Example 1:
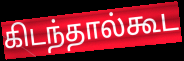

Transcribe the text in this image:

கிடந்தால்கூட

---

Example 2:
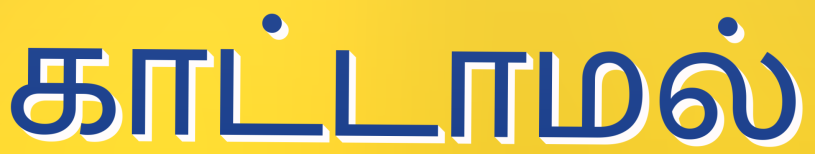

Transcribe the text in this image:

காட்டாமல்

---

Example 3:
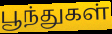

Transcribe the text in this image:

பூந்துகள்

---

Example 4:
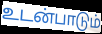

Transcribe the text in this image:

உடன்பாடும்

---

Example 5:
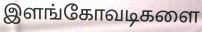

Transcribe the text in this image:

இளங்கோவடிகளை